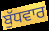
ਬੁੱਧਵਾਰ